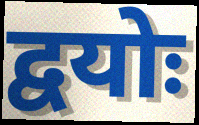
द्वयोः